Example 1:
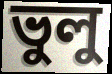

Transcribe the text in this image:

ভুলু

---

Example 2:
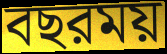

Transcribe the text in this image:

বছরময়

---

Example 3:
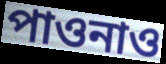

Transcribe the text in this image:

পাওনাও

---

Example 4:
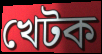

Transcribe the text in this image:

খেটক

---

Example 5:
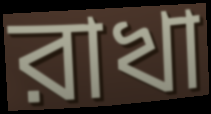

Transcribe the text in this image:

রাখা